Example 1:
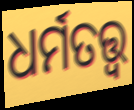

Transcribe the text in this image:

ଧର୍ମତତ୍ତ୍ଵ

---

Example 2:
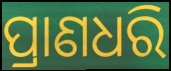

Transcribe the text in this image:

ପ୍ରାଣଧରି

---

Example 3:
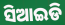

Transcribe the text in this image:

ସିଆଇଡି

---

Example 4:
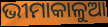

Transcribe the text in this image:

ଭୀମାକାଳୁଆ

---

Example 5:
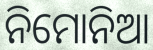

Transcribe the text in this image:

ନିମୋନିଆ